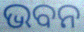
ଭବନ